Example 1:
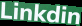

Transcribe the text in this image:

Linkdin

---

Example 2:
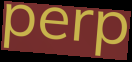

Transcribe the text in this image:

perp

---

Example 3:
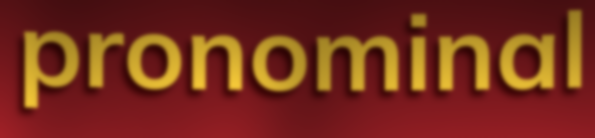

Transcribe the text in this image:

pronominal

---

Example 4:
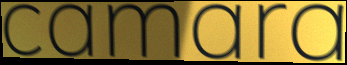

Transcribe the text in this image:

camara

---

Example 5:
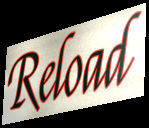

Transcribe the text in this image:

Reload